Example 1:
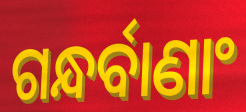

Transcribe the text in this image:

ଗନ୍ଧର୍ବାଣାଂ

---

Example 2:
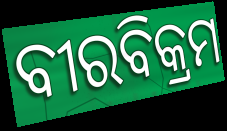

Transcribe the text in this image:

ବୀରବିକ୍ରମ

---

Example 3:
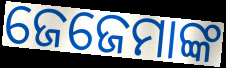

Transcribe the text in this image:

ଜେଜେମାଙ୍କ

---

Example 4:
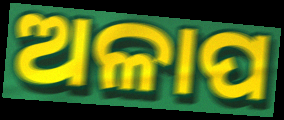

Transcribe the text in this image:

ଅଳାପ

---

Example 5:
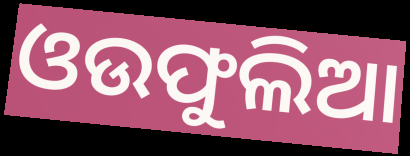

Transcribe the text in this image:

ଓଉଫୁଲିଆ